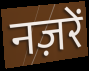
नज़रें